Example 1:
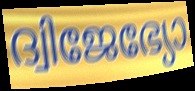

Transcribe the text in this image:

ദ്വിജേഭ്യോ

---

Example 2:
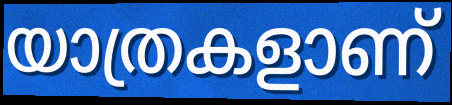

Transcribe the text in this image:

യാത്രകളാണ്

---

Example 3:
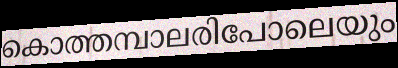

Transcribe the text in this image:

കൊത്തമ്പാലരിപോലെയും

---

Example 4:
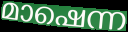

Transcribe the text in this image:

മാഷെന്ന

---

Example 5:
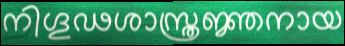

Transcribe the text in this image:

നിഗൂഢശാസ്ത്രജ്ഞനായ